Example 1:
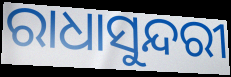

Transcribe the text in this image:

ରାଧାସୁନ୍ଦରୀ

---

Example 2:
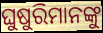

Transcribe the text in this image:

ଘୁଷୁରିମାନଙ୍କୁ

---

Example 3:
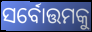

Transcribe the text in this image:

ସର୍ବୋତ୍ତମକୁ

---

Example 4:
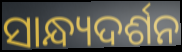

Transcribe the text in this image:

ସାନ୍ଧ୍ୟଦର୍ଶନ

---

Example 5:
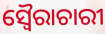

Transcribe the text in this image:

ସ୍ୱୈରାଚାରୀ